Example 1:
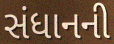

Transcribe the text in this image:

સંધાનની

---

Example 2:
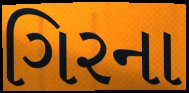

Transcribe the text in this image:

ગિરના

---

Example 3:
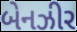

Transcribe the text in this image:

બેનઝીર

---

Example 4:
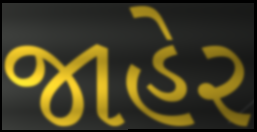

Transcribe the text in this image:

જાહેર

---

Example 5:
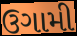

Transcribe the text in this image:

ઉગામી